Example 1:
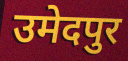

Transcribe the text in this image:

उमेदपुर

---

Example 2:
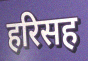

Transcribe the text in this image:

हरिसह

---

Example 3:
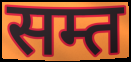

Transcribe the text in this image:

सम्त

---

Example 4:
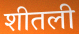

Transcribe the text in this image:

शीतली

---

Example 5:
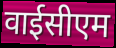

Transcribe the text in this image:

वाईसीएम